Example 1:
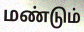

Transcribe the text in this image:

மண்டும்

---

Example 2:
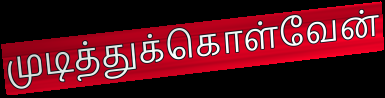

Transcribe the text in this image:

முடித்துக்கொள்வேன்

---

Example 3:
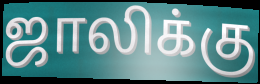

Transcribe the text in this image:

ஜாலிக்கு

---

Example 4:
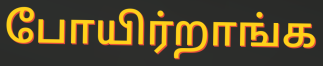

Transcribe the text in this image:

போயிர்றாங்க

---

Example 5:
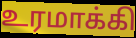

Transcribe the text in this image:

உரமாக்கி